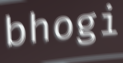
bhogi